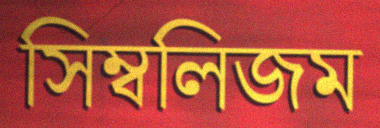
সিম্বলিজম